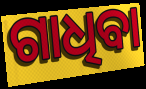
ଗାଧିବା